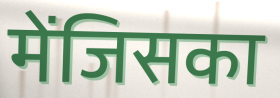
मेंजिसका